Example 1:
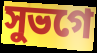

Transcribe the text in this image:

সুভগে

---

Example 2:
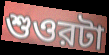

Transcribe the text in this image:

শুওরটা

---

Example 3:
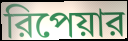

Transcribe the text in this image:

রিপেয়ার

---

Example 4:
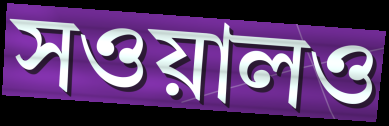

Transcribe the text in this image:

সওয়ালও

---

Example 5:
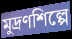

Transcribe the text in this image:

মুদ্রণশিল্পে